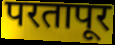
परतापूर